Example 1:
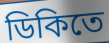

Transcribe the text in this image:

ডিকিতে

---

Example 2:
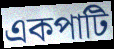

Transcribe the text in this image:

একপাটি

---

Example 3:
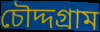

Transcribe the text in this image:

চৌদ্দগ্রাম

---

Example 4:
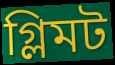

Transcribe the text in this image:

গ্লিমট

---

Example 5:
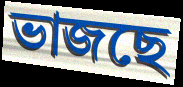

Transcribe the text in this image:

ভাজছে